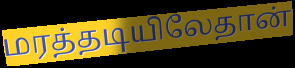
மரத்தடியிலேதான்